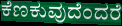
ಕೆಣಕುವುದೆಂದರೆ